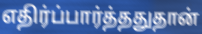
எதிர்ப்பார்த்ததுதான்